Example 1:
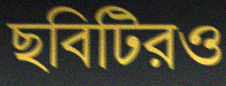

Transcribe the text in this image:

ছবিটিরও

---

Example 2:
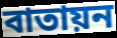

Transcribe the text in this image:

বাতায়ন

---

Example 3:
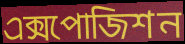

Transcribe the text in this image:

এক্সপোজিশন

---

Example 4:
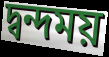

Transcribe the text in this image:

দ্বন্দময়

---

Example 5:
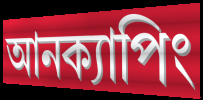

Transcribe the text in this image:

আনক্যাপিং